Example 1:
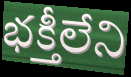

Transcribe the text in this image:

భక్తీలేని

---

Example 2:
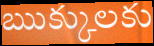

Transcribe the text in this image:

ఋక్కులకు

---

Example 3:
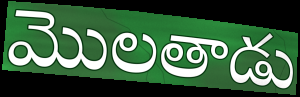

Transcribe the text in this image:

మొలతాడు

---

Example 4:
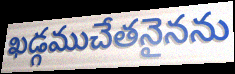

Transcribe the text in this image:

ఖడ్గముచేతనైనను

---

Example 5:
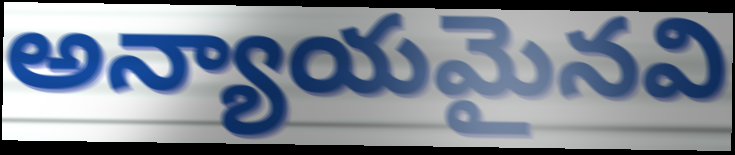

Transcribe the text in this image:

అన్యాయమైనవి